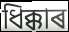
ধিক্কাৰ